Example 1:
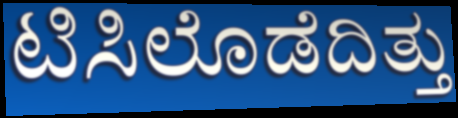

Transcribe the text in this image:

ಟಿಸಿಲೊಡೆದಿತ್ತು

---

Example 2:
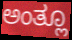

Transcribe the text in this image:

ಅಂತ್ಲೂ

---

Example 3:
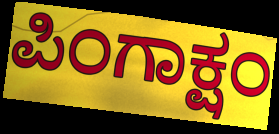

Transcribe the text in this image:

ಪಿಂಗಾಕ್ಷಂ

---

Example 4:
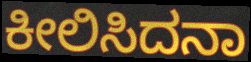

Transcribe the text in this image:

ಕೀಲಿಸಿದನಾ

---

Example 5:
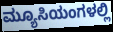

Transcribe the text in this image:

ಮ್ಯೂಸಿಯಂಗಳಲ್ಲಿ